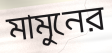
মামুনের